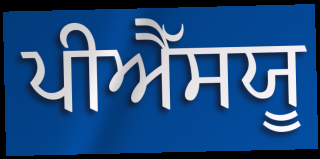
ਪੀਐੱਸਯੂ